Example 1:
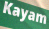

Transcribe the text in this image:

Kayam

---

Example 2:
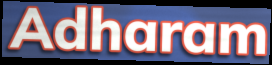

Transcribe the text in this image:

Adharam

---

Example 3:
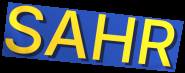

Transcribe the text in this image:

SAHR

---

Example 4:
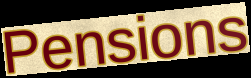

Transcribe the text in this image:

Pensions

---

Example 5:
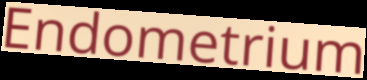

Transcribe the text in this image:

Endometrium